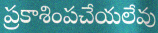
ప్రకాశింపచేయలేవు